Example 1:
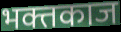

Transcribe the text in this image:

भक्तकाज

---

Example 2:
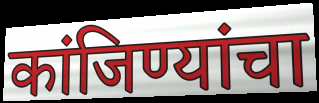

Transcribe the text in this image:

कांजिण्यांचा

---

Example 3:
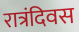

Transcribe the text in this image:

रात्रंदिवस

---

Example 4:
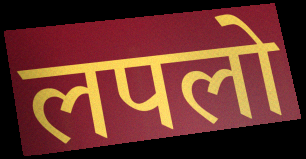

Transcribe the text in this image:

लपलो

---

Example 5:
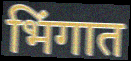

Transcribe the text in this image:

भिंगात